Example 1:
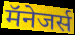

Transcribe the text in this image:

मॅनेजर्स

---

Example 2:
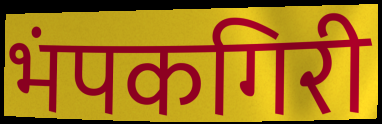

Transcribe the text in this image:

भंपकगिरी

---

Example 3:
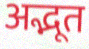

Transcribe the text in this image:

अद्भूत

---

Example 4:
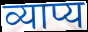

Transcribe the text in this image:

व्याप्य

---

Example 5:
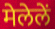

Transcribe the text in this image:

मेलेलें